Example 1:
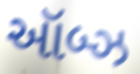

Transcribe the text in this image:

ઑબ્ઝ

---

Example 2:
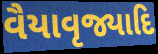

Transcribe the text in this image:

વૈયાવૃજ્યાદિ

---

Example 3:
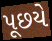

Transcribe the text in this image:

પૂછયે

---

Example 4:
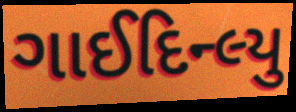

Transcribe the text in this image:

ગાઈદિન્લ્યુ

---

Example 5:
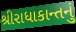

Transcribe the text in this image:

શ્રીરાધાકાન્તનું